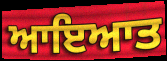
ਆਇਆਤ